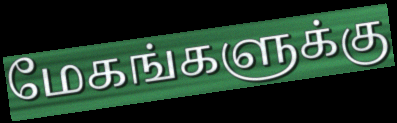
மேகங்களுக்கு